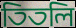
তিতলি